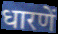
धारणें